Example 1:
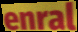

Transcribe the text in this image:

enral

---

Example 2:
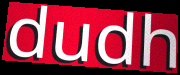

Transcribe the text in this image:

dudh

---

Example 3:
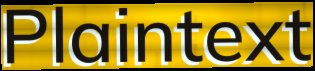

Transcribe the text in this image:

Plaintext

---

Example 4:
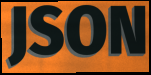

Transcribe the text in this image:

JSON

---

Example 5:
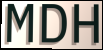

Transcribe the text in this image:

MDH